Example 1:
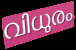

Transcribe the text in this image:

വിധുരം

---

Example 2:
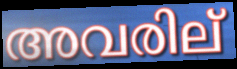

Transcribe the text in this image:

അവരില്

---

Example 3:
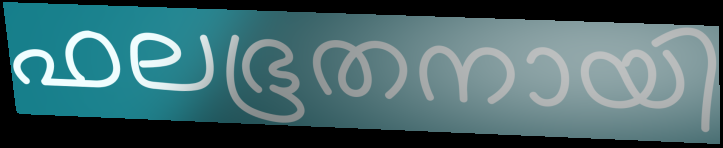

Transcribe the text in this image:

ഫലഭൂതനായി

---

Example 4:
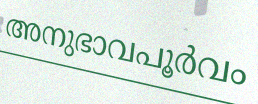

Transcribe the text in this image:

അനുഭാവപൂർവം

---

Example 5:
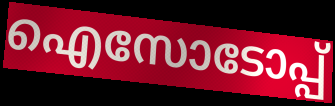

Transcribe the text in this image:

ഐസോടോപ്പ്